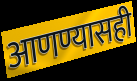
आणण्यासही